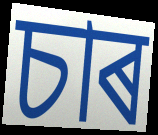
চাৰ